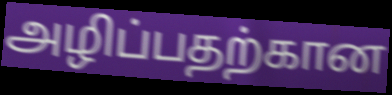
அழிப்பதற்கான